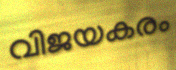
വിജയകരം